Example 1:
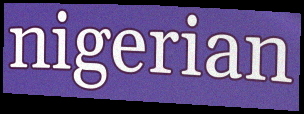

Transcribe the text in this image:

nigerian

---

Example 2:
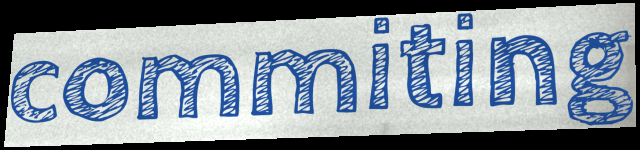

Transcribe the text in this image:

commiting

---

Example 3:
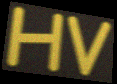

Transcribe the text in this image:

HV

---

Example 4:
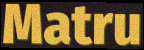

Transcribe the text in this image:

Matru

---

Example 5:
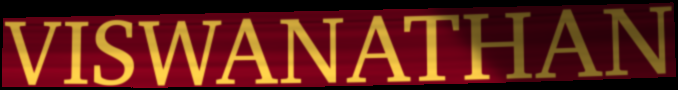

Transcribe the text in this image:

VISWANATHAN